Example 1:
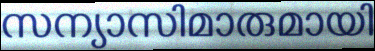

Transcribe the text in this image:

സന്യാസിമാരുമായി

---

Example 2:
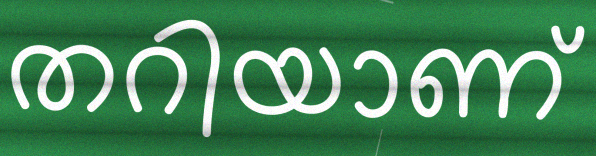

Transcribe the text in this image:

തറിയാണ്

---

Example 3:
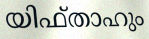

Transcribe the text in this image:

യിഫ്താഹും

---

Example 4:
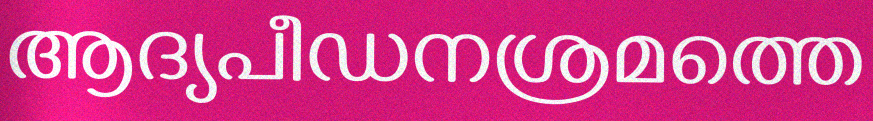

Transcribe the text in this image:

ആദ്യപീഡനശ്രമത്തെ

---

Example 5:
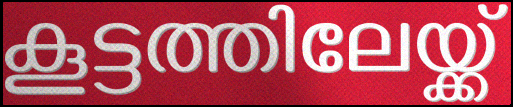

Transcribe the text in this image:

കൂട്ടത്തിലേയ്ക്ക്